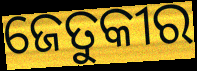
ଜେତୁକୀର